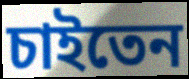
চাইতেন